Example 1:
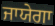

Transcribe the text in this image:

ਜਾਯੇਗਾ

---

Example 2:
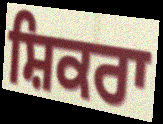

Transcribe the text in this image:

ਸ਼ਿਕਰਾ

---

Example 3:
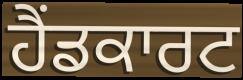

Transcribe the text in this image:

ਹੈਂਡਕਾਰਟ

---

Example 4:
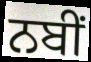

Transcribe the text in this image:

ਨਬੀਂ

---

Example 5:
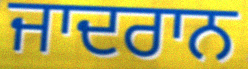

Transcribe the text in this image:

ਜਾਦਰਾਨ